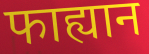
फाह्यान